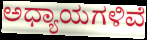
ಅಧ್ಯಾಯಗಳಿವೆ